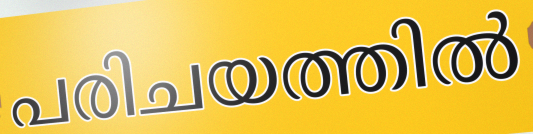
പരിചയത്തിൽ